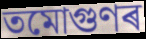
তমোগুণৰ